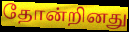
தோன்றினது